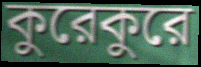
কুরেকুরে